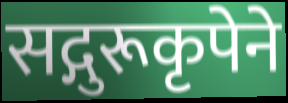
सद्गुरूकृपेने